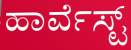
ಹಾರ್ವೆಸ್ಟ್